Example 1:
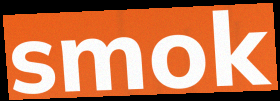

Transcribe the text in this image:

smok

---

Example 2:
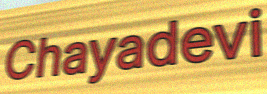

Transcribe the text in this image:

Chayadevi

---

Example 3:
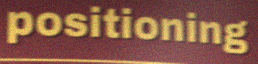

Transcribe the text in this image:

positioning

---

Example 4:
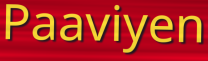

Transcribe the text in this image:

Paaviyen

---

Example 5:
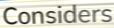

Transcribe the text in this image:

Considers